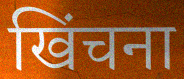
खिंचना